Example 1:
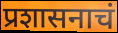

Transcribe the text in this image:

प्रशासनाचं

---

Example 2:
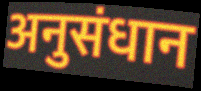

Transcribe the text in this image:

अनुसंधान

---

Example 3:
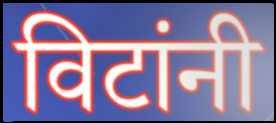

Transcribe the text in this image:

विटांनी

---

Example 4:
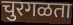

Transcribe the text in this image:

चुरगळता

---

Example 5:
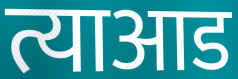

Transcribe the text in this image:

त्याआड